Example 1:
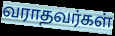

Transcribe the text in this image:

வராதவர்கள்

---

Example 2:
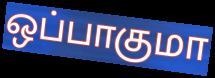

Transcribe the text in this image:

ஒப்பாகுமா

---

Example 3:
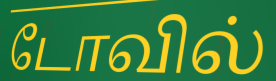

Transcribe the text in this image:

டோவில்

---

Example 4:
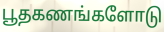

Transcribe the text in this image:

பூதகணங்களோடு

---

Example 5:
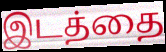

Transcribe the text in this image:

இடத்தை